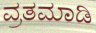
ವ್ರತಮಾಡಿ